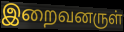
இறைவனருள்